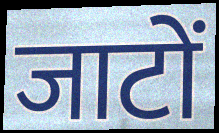
जाटों